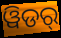
ୱିଡର୍